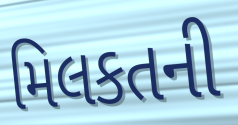
મિલકતની